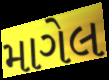
માગેલ